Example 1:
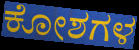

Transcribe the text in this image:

ಕೋಶಗಳ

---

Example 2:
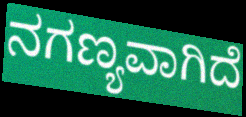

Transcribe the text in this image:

ನಗಣ್ಯವಾಗಿದೆ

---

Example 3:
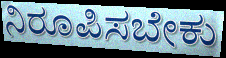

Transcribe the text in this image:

ನಿರೂಪಿಸಬೇಕು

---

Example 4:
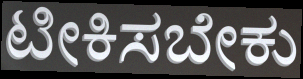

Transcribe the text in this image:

ಟೀಕಿಸಬೇಕು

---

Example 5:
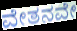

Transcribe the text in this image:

ವೇತನವೇ